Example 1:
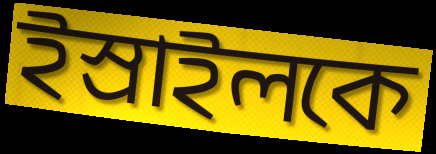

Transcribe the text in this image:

ইস্রাইলকে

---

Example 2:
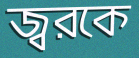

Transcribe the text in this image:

জ্বরকে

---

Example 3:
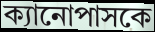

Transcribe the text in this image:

ক্যানোপাসকে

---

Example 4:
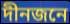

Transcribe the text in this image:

দীনজনে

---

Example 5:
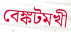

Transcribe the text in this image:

বেঙ্কটমখী